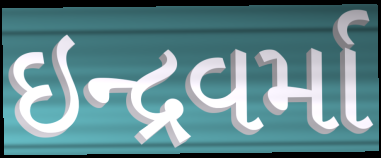
ઇન્દ્રવર્મા